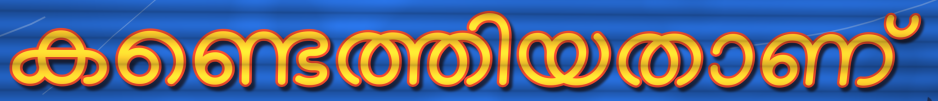
കണ്ടെത്തിയതാണ്